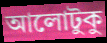
আলোটুকু